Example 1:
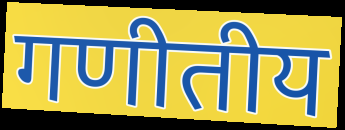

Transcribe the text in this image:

गणीतीय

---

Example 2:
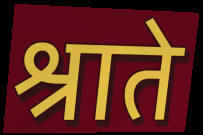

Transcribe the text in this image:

श्राते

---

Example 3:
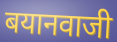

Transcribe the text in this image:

बयानवाजी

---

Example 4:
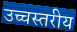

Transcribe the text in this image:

उच्चस्तरीय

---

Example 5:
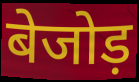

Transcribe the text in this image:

बेजोड़